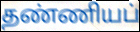
தண்ணியப்